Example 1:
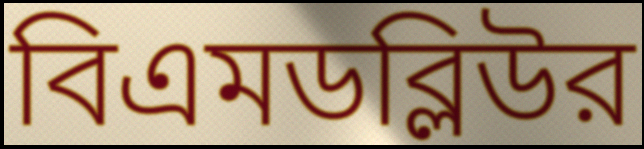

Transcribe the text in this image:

বিএমডব্লিউর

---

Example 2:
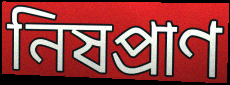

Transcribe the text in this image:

নিষপ্রাণ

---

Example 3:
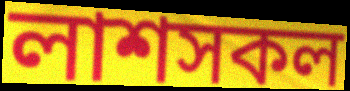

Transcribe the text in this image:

লাশসকল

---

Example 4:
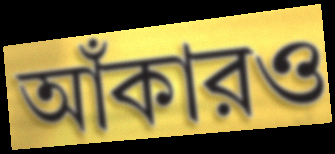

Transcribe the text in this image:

আঁকারও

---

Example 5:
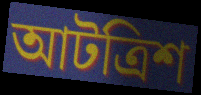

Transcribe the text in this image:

আটত্রিশ